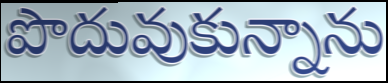
పొదువుకున్నాను